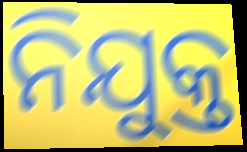
ନିଯୁକ୍ତ